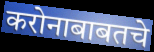
करोनाबाबतचे